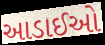
આડાઈઓ